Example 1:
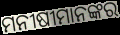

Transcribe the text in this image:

ମନୀଷୀମାନଙ୍କର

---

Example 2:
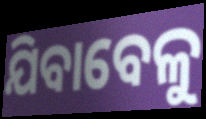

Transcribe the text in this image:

ଯିବାବେଳୁ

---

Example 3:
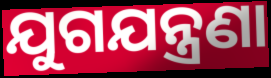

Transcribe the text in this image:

ଯୁଗଯନ୍ତ୍ରଣା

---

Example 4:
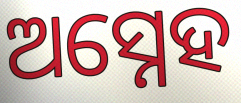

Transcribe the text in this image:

ଅସ୍ନେହ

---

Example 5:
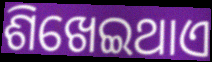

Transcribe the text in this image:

ଶିଖେଇଥାଏ